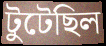
টুটেছিল